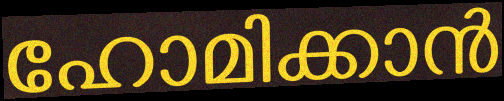
ഹോമിക്കാൻ